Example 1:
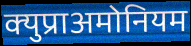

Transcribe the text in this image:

क्युप्राअमोनियम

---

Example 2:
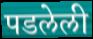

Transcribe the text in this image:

पडलेली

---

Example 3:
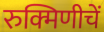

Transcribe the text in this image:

रुक्मिणीचें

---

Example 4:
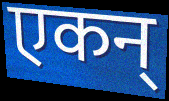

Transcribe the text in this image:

एकन्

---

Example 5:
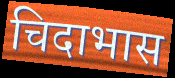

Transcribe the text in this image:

चिदाभास